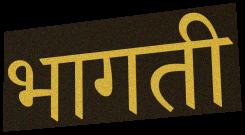
भागती